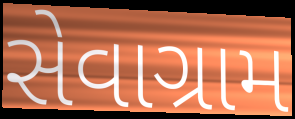
સેવાગ્રામ